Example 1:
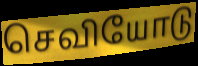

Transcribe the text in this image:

செவியோடு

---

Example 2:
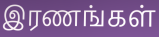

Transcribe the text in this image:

இரணங்கள்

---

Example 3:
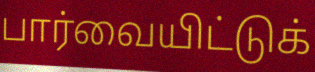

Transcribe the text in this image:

பார்வையிட்டுக்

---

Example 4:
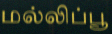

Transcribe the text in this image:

மல்லிப்பூ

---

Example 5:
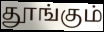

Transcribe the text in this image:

தூங்கும்